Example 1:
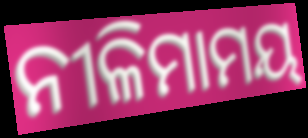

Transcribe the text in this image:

ନୀଳିମାମୟ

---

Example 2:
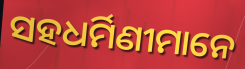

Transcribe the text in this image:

ସହଧର୍ମିଣୀମାନେ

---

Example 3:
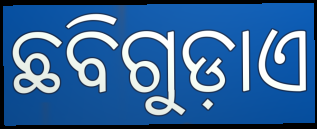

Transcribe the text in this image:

ଛବିଗୁଡ଼ାଏ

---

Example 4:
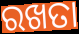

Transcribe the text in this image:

ରଖତା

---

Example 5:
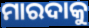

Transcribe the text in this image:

ମାରଦାକୁ